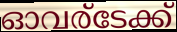
ഓവര്ടേക്ക്